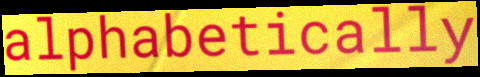
alphabetically